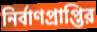
নির্বাণপ্রাপ্তির